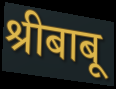
श्रीबाबू